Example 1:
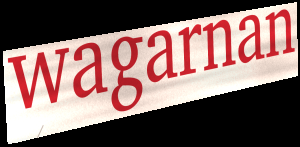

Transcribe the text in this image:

wagarnan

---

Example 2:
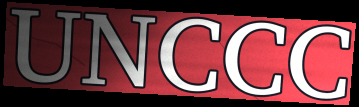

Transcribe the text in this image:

UNCCC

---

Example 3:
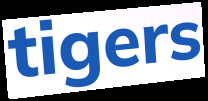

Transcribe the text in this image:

tigers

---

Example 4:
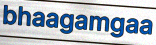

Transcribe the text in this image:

bhaagamgaa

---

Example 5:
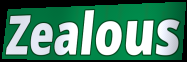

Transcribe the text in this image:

Zealous